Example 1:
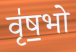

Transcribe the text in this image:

वृ॑ष॒भो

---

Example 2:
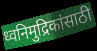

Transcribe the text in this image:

ध्वनिमुद्रिकांसाठी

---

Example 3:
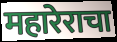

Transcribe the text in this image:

महारेराचा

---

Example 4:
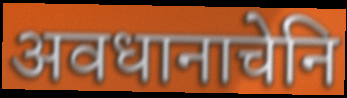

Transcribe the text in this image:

अवधानाचेनि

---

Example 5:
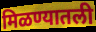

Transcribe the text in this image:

मिळण्यातली